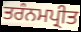
ਤਰੰਨਮਪ੍ਰੀਤ